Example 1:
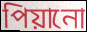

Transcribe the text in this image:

পিয়ানো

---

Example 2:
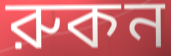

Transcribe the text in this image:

ৰুকন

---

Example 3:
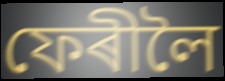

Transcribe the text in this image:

ফেৰীলৈ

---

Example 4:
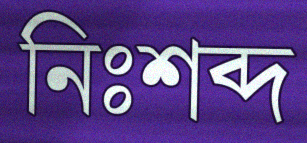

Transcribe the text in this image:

নিঃশব্দ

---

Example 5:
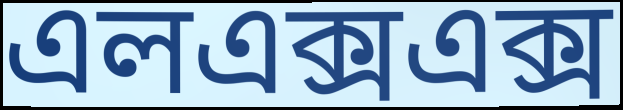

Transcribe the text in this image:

এলএক্সএক্স